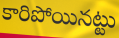
కారిపోయినట్టు